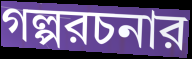
গল্পরচনার